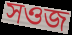
সওজ